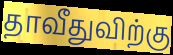
தாவீதுவிற்கு